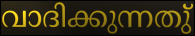
വാദിക്കുന്നതു്